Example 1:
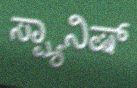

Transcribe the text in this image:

ಸ್ಪ್ಯಾನಿಷ್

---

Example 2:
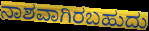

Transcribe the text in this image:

ನಾಶವಾಗಿರಬಹುದು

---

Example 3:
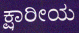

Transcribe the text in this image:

ಕ್ಷಾರೀಯ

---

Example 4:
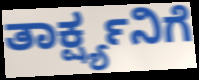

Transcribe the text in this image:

ತಾರ್ಕ್ಷ್ಯನಿಗೆ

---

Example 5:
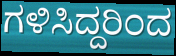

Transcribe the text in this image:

ಗಳಿಸಿದ್ದರಿಂದ